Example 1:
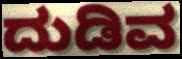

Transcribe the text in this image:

ದುಡಿವ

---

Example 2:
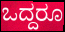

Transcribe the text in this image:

ಒದ್ದರೂ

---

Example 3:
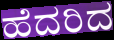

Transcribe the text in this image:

ಹೆದರಿದ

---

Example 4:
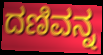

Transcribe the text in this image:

ದಣಿವನ್ನ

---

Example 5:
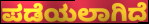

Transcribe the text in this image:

ಪಡೆಯಲಾಗಿದೆ